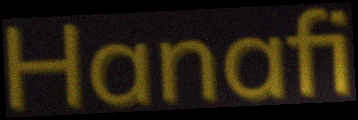
Hanafi